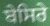
ਬੇਸਿਰੇ